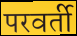
परवर्ती